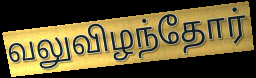
வலுவிழந்தோர்